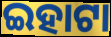
ଇହାଟା